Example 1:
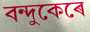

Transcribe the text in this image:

বন্দুকেৰে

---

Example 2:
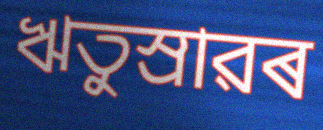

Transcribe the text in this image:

ঋতুস্ৰাৱৰ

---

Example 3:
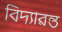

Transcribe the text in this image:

বিদ্যাৱন্ত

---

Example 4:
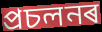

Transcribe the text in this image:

প্ৰচলনৰ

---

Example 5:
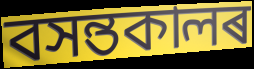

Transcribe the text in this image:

বসন্তকালৰ